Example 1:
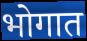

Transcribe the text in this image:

भोगात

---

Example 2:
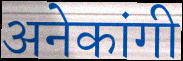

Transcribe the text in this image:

अनेकांगी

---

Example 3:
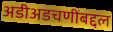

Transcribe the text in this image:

अडीअडचणींबद्दल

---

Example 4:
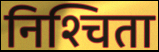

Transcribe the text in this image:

निश्चिता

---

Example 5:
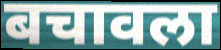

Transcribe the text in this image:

बचावला